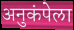
अनुकंपेला